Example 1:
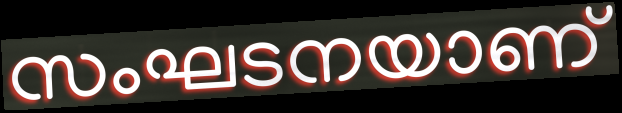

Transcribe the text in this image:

സംഘടനയാണ്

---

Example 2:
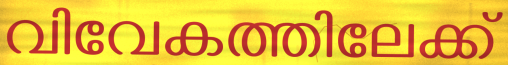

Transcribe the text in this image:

വിവേകത്തിലേക്ക്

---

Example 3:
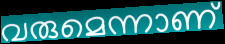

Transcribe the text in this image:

വരുമെന്നാണ്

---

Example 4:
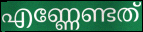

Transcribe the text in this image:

എണ്ണേണ്ടത്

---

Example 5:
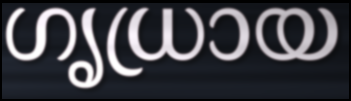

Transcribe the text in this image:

ഗൃധ്രായ